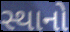
સ્થાનો